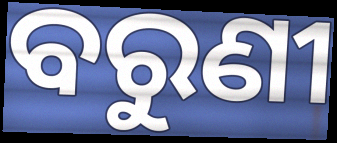
ବରୁଣୀ